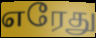
எரேது